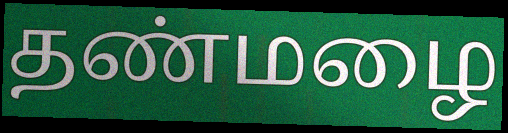
தண்மழை